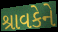
શ્રાવકેને